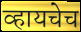
व्हायचेच